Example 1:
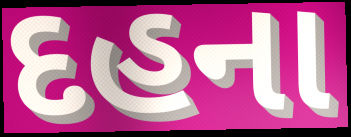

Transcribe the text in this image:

દહના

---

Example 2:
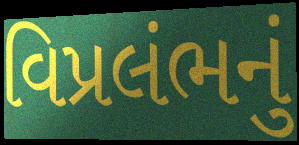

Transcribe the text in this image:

વિપ્રલંભનું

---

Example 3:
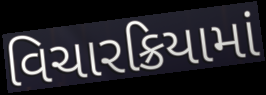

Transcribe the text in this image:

વિચારક્રિયામાં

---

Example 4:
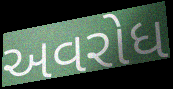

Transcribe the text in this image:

અવરોધ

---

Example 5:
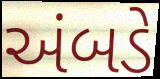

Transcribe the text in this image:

અંબડે